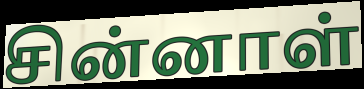
சின்னாள்